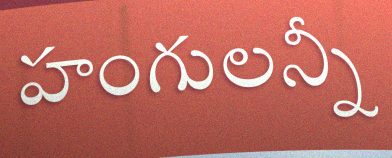
హంగులన్నీ